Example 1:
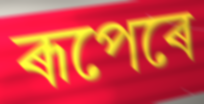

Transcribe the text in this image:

ৰূপেৰে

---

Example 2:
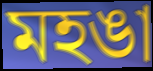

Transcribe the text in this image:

মহঙা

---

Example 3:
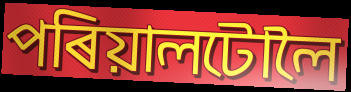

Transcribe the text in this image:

পৰিয়ালটোলৈ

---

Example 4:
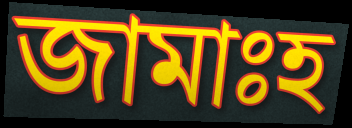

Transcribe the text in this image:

জামাঃহ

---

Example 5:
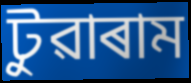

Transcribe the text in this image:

টুৱাৰাম